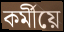
কৰ্মীয়ে